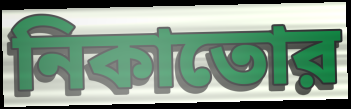
নিকাতোর